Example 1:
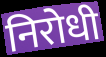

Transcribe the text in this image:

निरोधी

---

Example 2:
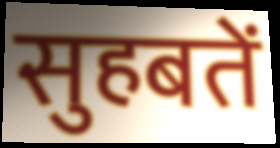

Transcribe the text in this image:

सुहबतें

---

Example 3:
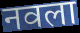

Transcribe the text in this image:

नवला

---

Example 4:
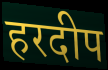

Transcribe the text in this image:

हरदीप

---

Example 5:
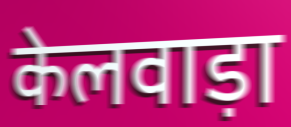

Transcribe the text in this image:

केलवाड़ा